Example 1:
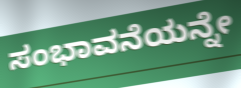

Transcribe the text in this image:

ಸಂಭಾವನೆಯನ್ನೇ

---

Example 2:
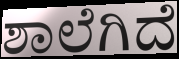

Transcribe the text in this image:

ಶಾಲೆಗಿದೆ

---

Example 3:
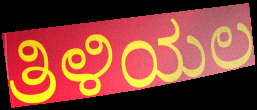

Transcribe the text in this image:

ತಿಳಿಯಲ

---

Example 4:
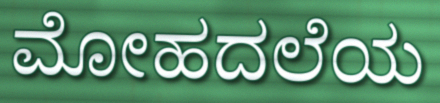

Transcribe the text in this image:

ಮೋಹದಲೆಯ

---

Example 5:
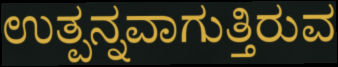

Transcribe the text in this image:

ಉತ್ಪನ್ನವಾಗುತ್ತಿರುವ